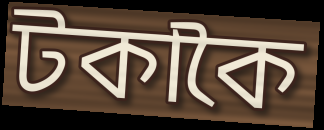
টকাকৈ